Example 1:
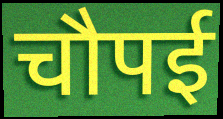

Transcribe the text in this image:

चौपई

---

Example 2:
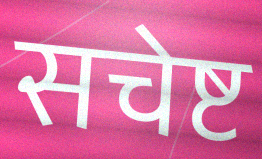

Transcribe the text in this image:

सचेष्ट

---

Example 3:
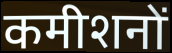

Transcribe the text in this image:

कमीशनों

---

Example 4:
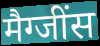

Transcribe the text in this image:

मैग्जींस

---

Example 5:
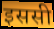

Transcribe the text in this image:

इससी